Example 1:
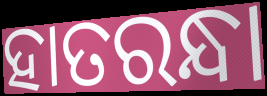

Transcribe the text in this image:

ହାତରନ୍ଧା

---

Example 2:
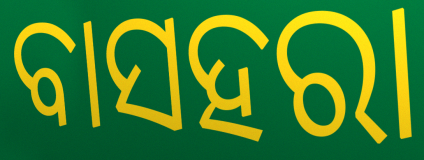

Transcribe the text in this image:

ବାସହରା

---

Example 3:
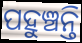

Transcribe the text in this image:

ପହୁଞ୍ଚନ୍ତି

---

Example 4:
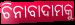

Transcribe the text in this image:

ଚିନାବାଦାମକୁ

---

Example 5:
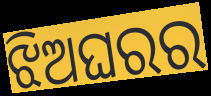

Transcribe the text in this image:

ଝିଅଘରର